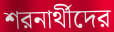
শরনার্থীদের